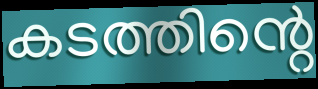
കടത്തിന്റെ